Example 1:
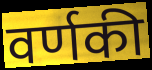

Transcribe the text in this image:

वर्णकी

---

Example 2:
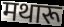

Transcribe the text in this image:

मथारू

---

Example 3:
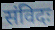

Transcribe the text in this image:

संविदः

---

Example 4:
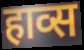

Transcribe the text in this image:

हाव्स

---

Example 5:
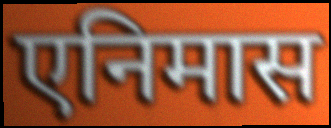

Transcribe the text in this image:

एनिमास